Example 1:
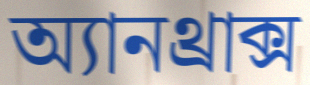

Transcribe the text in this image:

অ্যানথ্রাক্স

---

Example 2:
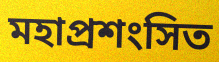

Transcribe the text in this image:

মহাপ্রশংসিত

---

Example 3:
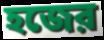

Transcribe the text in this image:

হজের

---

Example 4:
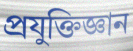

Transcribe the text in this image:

প্রযুক্তিজ্ঞান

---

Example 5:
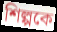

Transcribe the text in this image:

শিল্পকে